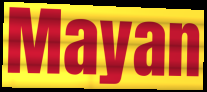
Mayan